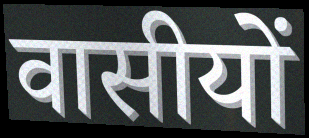
वासीयों